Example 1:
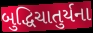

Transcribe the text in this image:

બુદ્ધિચાતુર્યના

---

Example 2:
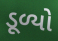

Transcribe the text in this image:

ડૂળ્યો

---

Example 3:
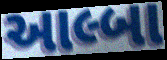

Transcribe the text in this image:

આલ્બા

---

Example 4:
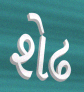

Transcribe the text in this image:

શેઢ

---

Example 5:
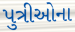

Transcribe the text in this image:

પુત્રીઓના